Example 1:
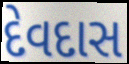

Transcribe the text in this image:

દેવદાસ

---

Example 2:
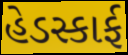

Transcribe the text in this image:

હેડસ્કાર્ફ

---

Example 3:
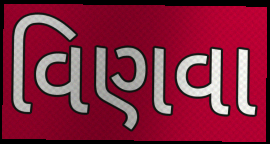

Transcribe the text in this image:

વિણવા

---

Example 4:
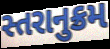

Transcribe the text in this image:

સ્તરાનુક્રમ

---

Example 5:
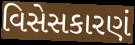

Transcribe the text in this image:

વિસેસકારણં